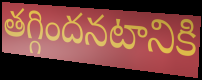
తగ్గిందనటానికి